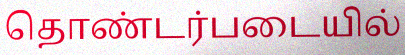
தொண்டர்படையில்